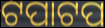
ଟପାଟପ